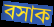
বসাক